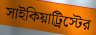
সাইকিয়াট্রিস্টের